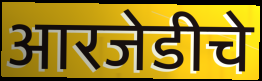
आरजेडीचे